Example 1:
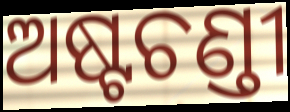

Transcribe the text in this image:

ଅଷ୍ଟଚଣ୍ଡୀ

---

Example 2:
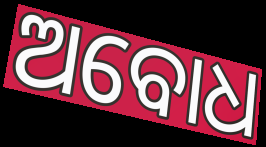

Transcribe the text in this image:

ଅବୋଧ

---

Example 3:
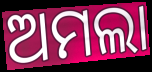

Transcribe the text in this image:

ଅମଲା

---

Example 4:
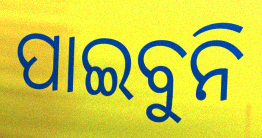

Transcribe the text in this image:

ପାଇବୁନି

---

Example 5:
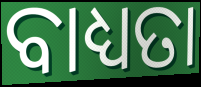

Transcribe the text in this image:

ବାଧ୍ୟତା